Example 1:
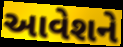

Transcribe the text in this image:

આવેશને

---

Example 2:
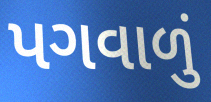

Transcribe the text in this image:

પગવાળું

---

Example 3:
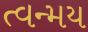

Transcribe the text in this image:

ત્વન્મય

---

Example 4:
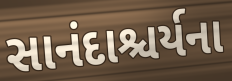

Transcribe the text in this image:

સાનંદાશ્ચર્યના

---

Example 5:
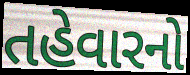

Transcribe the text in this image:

તહેવારનો